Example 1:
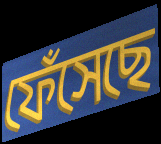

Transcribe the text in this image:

ফেঁসেছে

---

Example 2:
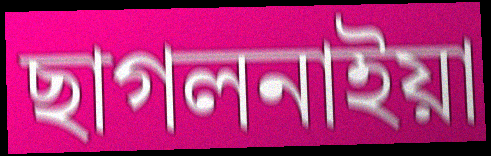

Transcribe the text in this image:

ছাগলনাইয়া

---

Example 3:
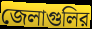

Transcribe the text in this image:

জেলাগুলির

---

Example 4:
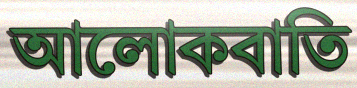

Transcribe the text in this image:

আলোকবাতি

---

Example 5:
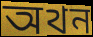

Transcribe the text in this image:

অথন